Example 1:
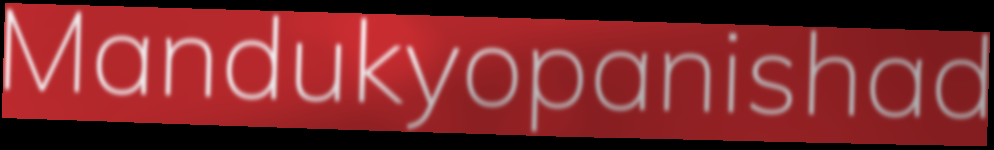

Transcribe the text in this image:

Mandukyopanishad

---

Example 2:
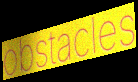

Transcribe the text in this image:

obstacles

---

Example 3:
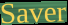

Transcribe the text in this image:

Saver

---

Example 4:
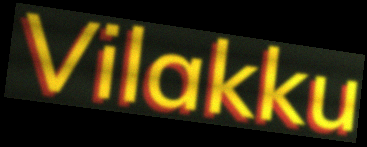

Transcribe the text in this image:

Vilakku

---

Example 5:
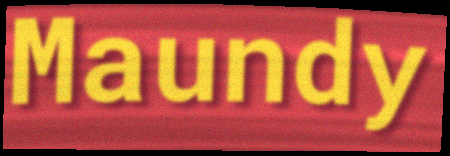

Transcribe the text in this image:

Maundy